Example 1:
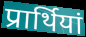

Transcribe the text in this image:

प्रार्थियां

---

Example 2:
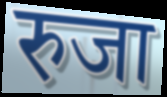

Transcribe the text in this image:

रुजा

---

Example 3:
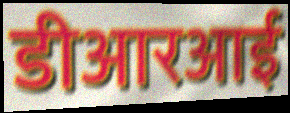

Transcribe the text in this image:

डीआरआई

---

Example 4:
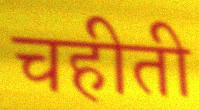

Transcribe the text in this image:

चहीती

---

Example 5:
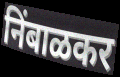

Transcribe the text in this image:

निंबाळकर